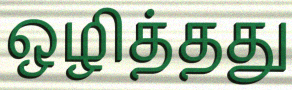
ஒழித்தது